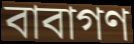
বাবাগণ